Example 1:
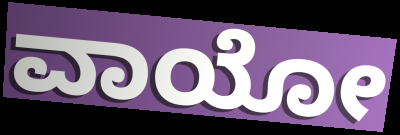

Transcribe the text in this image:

ವಾಯೋ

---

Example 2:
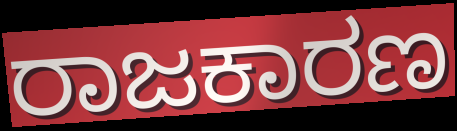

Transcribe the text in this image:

ರಾಜಕಾರಣ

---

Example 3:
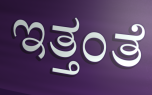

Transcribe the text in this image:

ಇತ್ತಂತೆ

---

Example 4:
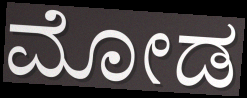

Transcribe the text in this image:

ಮೋಡ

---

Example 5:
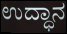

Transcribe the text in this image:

ಉದ್ಧಾನ